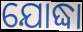
ଯୋଦ୍ଧା